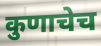
कुणाचेच